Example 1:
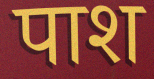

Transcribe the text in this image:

पाश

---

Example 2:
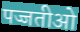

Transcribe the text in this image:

पज्जतीओ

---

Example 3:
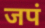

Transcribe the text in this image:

जपं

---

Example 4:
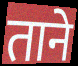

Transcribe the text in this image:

ताने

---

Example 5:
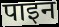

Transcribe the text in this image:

पाइन